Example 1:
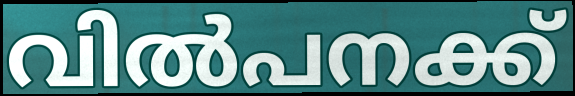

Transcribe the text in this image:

വിൽപനക്ക്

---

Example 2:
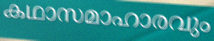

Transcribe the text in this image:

കഥാസമാഹാരവും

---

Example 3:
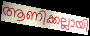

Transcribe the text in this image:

ആണിക്കല്ലായി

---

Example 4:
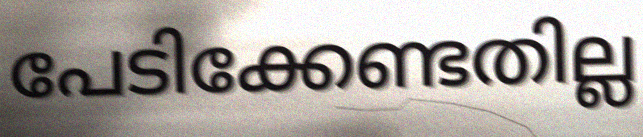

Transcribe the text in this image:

പേടിക്കേണ്ടതില്ല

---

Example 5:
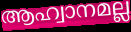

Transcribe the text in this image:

ആഹ്വാനമല്ല